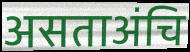
असताअंचि